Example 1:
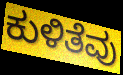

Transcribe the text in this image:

ಕುಳಿತೆವು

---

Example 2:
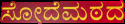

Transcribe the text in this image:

ಸೋದೆಮಠದ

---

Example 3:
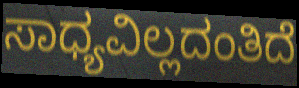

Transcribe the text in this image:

ಸಾಧ್ಯವಿಲ್ಲದಂತಿದೆ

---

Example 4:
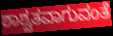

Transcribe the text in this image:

ಶಾಶ್ವತವಾಗುವಂತೆ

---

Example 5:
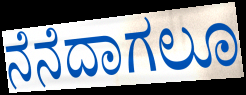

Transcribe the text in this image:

ನೆನೆದಾಗಲೂ